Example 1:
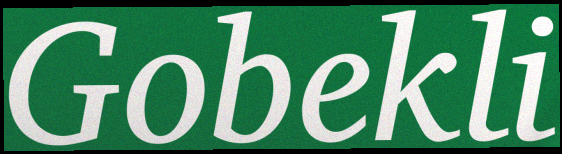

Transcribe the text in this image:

Gobekli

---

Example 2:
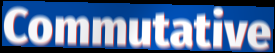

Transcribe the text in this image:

Commutative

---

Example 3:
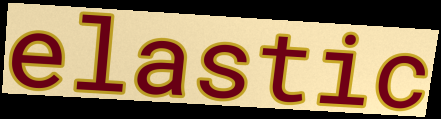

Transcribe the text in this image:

elastic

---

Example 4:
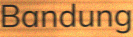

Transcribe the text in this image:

Bandung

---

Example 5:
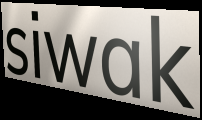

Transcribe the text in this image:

siwak